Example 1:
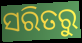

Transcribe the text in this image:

ସରିତରୁ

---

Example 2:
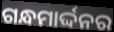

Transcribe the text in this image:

ଗନ୍ଧମାର୍ଦ୍ଦନର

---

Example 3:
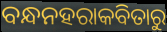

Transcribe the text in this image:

ବନ୍ଧନହରାକବିତାରୁ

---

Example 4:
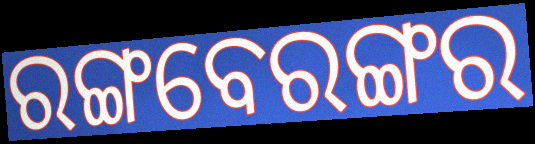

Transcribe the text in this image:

ରଙ୍ଗବେରଙ୍ଗର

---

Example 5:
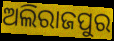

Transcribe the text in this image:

ଅଲିରାଜପୁର